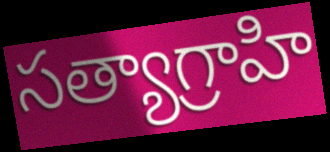
సత్యాగ్రాహి